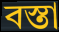
বস্তা